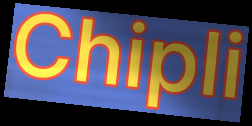
Chipli